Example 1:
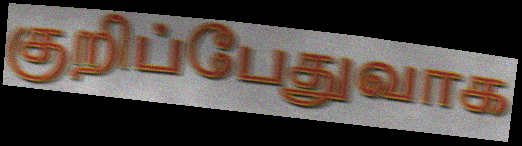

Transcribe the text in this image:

குறிப்பேதுவாக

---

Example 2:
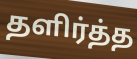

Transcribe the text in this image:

தளிர்த்த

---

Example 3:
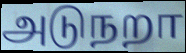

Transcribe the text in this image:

அடுநறா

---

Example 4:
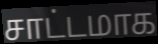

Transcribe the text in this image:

சாட்டமாக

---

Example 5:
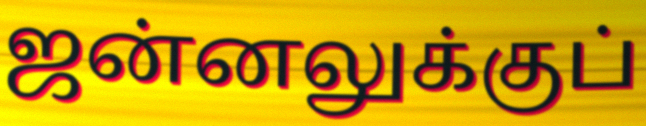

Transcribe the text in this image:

ஜன்னலுக்குப்